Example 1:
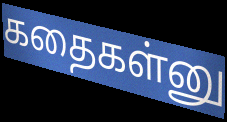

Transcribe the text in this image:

கதைகள்னு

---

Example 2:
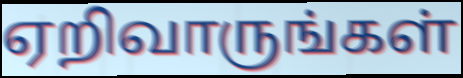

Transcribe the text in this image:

ஏறிவாருங்கள்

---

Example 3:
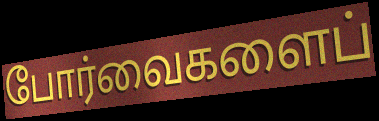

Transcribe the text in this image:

போர்வைகளைப்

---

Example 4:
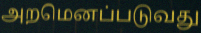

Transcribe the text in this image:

அறமெனப்படுவது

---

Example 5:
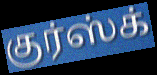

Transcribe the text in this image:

குர்ஸ்க்